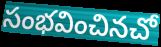
సంభవించినచో